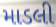
માડલી